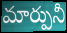
మార్పునీ